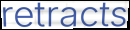
retracts